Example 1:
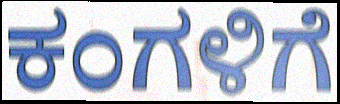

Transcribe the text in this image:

ಕಂಗಳಿಗೆ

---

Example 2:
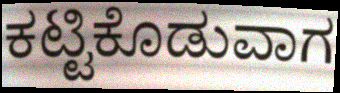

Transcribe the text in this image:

ಕಟ್ಟಿಕೊಡುವಾಗ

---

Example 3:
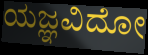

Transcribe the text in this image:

ಯಜ್ಞವಿದೋ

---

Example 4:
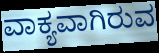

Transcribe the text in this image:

ವಾಕ್ಯವಾಗಿರುವ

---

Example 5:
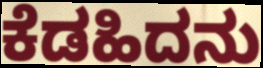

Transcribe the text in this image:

ಕೆಡಹಿದನು